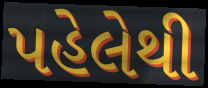
પહેલેથી